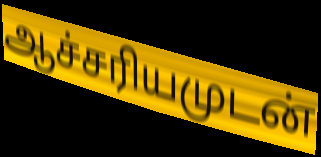
ஆச்சரியமுடன்